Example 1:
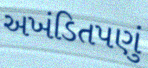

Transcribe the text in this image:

અખંડિતપણું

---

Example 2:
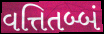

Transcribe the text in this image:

વત્તિતબ્બં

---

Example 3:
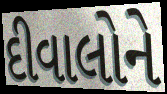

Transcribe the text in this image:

દીવાલોને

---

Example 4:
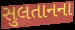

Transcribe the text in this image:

સુલતાનના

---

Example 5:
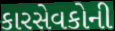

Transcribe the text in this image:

કારસેવકોની